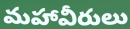
మహావీరులు